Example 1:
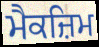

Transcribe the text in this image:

ਮੈਕਜ਼ਿਮ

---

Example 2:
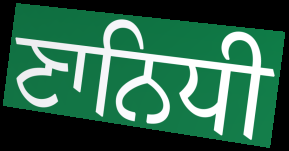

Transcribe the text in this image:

ਣਾਨਿਧੀ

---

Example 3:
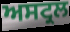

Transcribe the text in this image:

ਅਸਟ੍ਰਲ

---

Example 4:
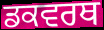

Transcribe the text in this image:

ਡਕਵਰਥ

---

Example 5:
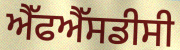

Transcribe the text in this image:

ਐੱਫਐੱਸਡੀਸੀ